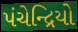
પંચેન્દ્રિયો